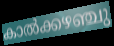
കാൽക്കഴഞ്ചു